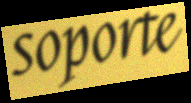
soporte